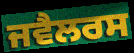
ਜਵੈਲਰਸ